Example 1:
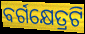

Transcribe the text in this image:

ବର୍ଗକ୍ଷେତ୍ରଟି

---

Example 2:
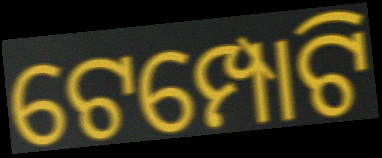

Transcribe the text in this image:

ଟେମ୍ପୋଟି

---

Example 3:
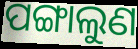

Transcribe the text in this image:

ପଙ୍ଗାଲୁଣ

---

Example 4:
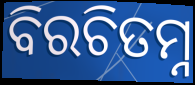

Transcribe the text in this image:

ବିରଚିତମ୍ନ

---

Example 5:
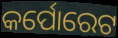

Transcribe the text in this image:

କର୍ପୋରେଟ